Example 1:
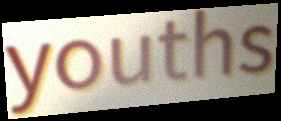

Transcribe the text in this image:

youths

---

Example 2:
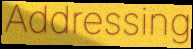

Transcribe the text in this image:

Addressing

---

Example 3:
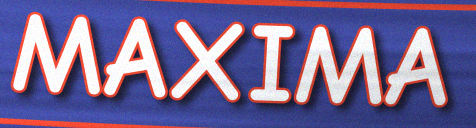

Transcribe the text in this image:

MAXIMA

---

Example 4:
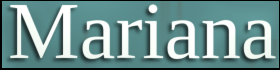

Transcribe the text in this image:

Mariana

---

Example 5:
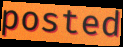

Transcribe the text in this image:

posted